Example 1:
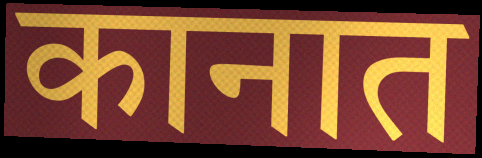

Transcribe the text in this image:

कानात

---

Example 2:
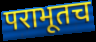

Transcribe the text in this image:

पराभूतच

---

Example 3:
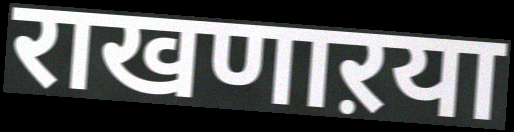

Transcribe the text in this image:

राखणाऱया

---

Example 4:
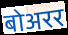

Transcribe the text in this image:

बोअरर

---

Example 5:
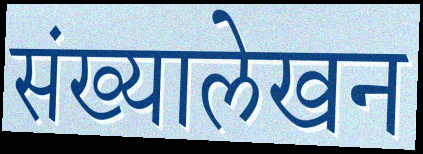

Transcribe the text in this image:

संख्यालेखन